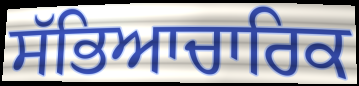
ਸੱਭਿਆਚਾਰਿਕ